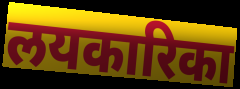
लयकारिका